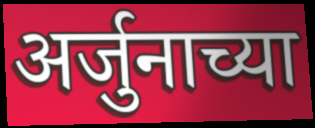
अर्जुनाच्या